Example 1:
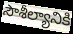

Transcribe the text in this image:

సౌశీల్యానికి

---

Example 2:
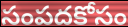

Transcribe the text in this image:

సంపదకోసం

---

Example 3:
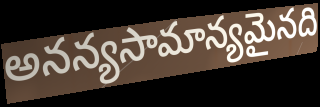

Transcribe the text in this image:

అనన్యసామాన్యమైనది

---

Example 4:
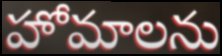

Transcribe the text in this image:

హోమాలను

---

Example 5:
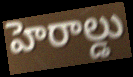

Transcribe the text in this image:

హెరాల్డు